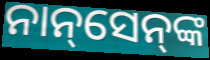
ନାନ୍‌ସେନ୍‌ଙ୍କ